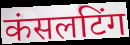
कंसलटिंग